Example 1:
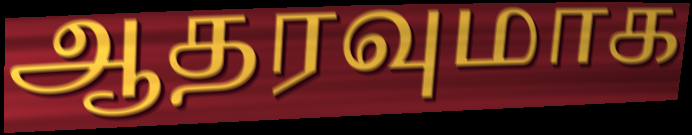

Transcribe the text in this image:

ஆதரவுமாக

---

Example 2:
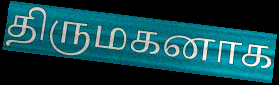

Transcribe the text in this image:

திருமகனாக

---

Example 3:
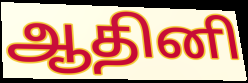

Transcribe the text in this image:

ஆதினி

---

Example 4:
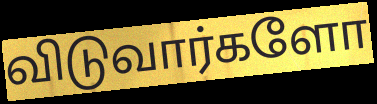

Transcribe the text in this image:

விடுவார்களோ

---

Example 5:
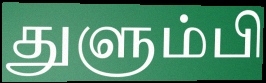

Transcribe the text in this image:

துளும்பி